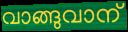
വാങ്ങുവാന്